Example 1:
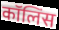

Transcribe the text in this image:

कॉलिंस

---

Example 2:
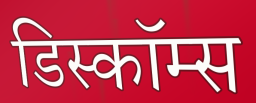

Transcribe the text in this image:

डिस्कॉम्स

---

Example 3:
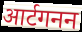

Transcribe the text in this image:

आर्टगनन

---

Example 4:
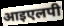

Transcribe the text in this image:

आइएलपी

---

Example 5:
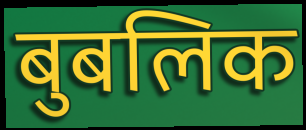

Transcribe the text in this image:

बुबलिक